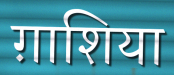
ग़ाशिया